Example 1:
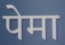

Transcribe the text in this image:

पेमा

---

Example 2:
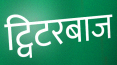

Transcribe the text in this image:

ट्विटरबाज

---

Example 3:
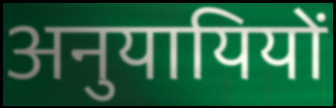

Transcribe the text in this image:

अनुयायियों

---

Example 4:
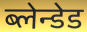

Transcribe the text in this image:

ब्लेन्डेड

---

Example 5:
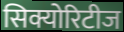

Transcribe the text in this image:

सिक्योरिटीज